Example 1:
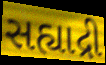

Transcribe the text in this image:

સહ્યાદ્રી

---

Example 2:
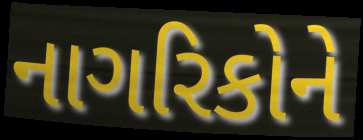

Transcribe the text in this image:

નાગરિકોને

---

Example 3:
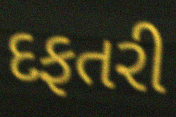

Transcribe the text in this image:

દફતરી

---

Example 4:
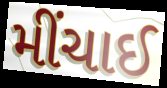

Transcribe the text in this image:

મીંચાઈ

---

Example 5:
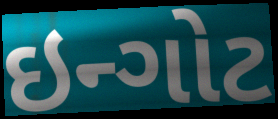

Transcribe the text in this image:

ઇન્ગોટ